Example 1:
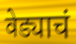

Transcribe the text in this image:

वेड्याचं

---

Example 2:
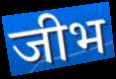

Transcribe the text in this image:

जीभ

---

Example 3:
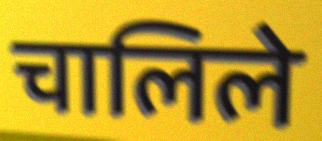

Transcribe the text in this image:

चालिले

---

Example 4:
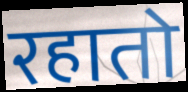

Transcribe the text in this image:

रहातो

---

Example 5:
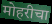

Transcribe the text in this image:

मोहरीचा